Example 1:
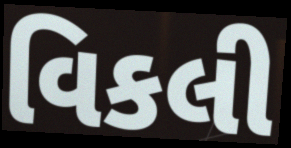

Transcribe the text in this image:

વિકલી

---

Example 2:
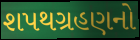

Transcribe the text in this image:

શપથગ્રહણનો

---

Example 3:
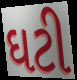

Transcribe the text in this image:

ઘટી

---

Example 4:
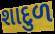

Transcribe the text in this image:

શાદુળ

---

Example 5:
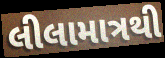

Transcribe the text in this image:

લીલામાત્રથી